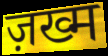
ज़ख्म